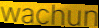
wachun